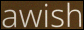
awish